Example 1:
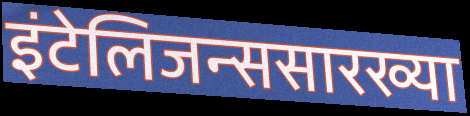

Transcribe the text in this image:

इंटेलिजन्ससारख्या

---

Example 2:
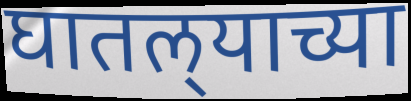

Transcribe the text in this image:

घातल्याच्या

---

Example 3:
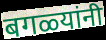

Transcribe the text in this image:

बगळ्यांनी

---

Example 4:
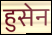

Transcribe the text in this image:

हुसेन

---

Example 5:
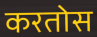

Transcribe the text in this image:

करतोस